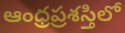
ఆంధ్రప్రశస్తిలో